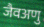
जैवअणु